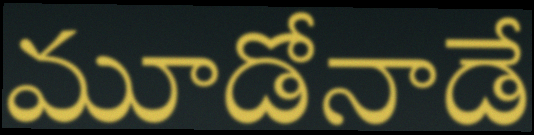
మూడోనాడే